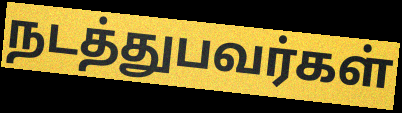
நடத்துபவர்கள்